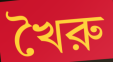
খৈরু